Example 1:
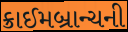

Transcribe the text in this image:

ક્રાઈમબ્રાન્ચની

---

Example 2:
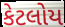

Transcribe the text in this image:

કેટલોય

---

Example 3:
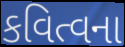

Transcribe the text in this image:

કવિત્વના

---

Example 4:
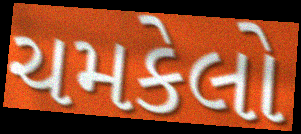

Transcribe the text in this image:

ચમકેલો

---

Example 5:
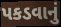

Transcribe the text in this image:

પકડવાનું